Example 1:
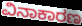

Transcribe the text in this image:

ವಿನಾಕಾರಣ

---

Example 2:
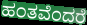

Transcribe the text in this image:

ಹಂತವೆಂದರೆ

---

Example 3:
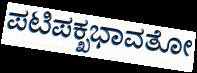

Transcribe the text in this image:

ಪಟಿಪಕ್ಖಭಾವತೋ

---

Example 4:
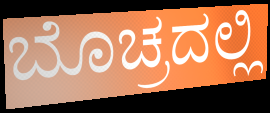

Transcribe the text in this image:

ಬೊಚ್ರದಲ್ಲಿ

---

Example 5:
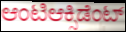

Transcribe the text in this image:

ಆಂಟಿಆಕ್ಸಿಡೆಂಟ್